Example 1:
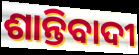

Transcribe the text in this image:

ଶାନ୍ତିବାଦୀ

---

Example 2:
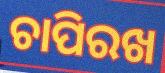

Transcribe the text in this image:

ଚାପିରଖ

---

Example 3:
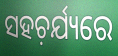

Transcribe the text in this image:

ସହଚ଼ର୍ଯ୍ୟରେ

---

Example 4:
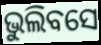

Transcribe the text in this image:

ଭୁଲିବସେ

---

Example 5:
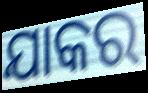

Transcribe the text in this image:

ଯାକର